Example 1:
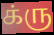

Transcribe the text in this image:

க்ரு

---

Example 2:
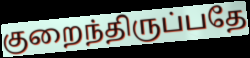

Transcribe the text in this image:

குறைந்திருப்பதே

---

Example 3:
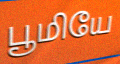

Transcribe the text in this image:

பூமியே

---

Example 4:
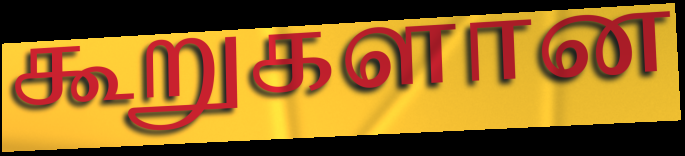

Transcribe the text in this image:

கூறுகளான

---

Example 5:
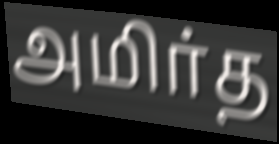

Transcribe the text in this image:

அமிர்த